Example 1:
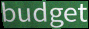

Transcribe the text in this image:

budget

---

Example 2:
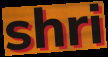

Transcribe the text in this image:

shri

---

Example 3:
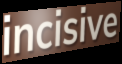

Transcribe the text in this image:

incisive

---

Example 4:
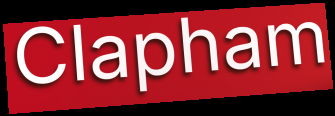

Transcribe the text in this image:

Clapham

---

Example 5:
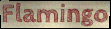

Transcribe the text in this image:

Flamingo